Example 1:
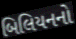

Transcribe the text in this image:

બિલિયનનો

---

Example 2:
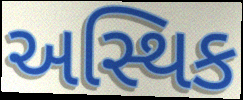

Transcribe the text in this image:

અસ્થિક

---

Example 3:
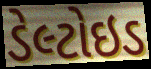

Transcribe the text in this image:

ડેલ્ટોઇડ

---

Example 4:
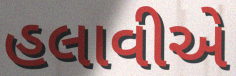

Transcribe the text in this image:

હલાવીએ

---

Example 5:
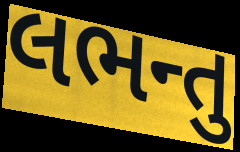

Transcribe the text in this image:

લભન્તુ